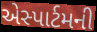
એસ્પાર્ટમની